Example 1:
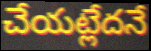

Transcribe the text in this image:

చేయట్లేదనే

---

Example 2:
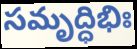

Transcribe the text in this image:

సమృద్ధిభిః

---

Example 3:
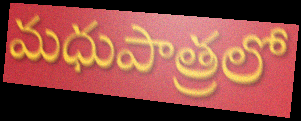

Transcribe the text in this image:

మధుపాత్రలో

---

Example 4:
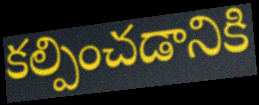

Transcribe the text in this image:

కల్పించడానికి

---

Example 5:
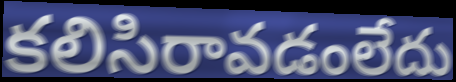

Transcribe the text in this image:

కలిసిరావడంలేదు